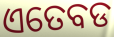
ଏତେବଡ